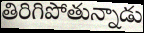
తిరిగిపోతున్నాడు